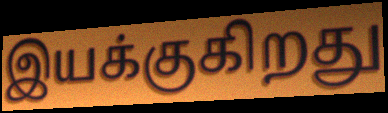
இயக்குகிறது